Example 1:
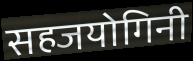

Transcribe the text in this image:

सहजयोगिनी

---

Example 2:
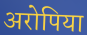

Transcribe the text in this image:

अरोपिया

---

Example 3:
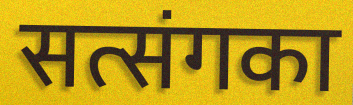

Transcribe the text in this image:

सत्संगका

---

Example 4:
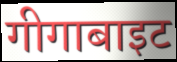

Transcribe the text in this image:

गीगाबाइट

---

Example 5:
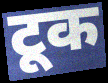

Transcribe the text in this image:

टूक